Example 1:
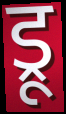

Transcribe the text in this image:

ड्रू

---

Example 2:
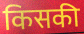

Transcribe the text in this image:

किसकी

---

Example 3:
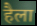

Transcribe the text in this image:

हैला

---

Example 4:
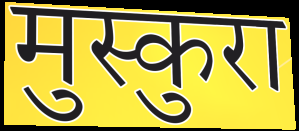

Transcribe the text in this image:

मुस्कुरा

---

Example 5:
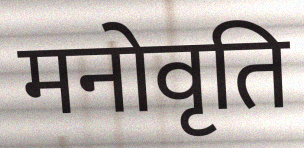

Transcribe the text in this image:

मनोवृति